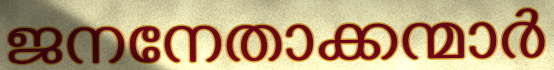
ജനനേതാക്കന്മാർ